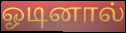
ஓடினால்